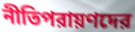
নীতিপরায়ণদের